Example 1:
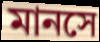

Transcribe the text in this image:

মানসে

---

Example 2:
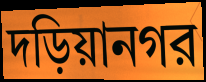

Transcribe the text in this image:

দড়িয়ানগর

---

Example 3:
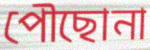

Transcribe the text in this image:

পৌছোনা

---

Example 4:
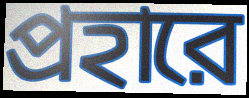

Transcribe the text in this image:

প্রহারে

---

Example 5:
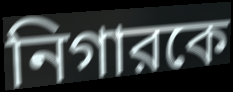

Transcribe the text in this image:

নিগারকে